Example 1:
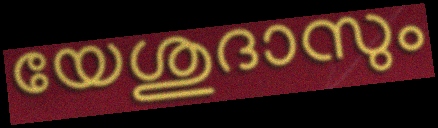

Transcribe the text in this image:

യേശുദാസും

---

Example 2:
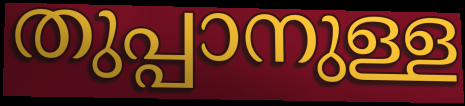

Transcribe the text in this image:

തുപ്പാനുള്ള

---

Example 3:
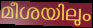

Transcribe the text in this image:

മീശയിലും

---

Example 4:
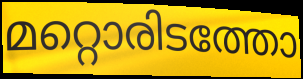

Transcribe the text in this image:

മറ്റൊരിടത്തോ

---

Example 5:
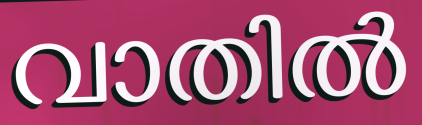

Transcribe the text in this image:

വാതിൽ